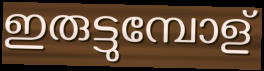
ഇരുട്ടുമ്പോള്